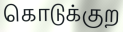
கொடுக்குற